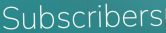
Subscribers